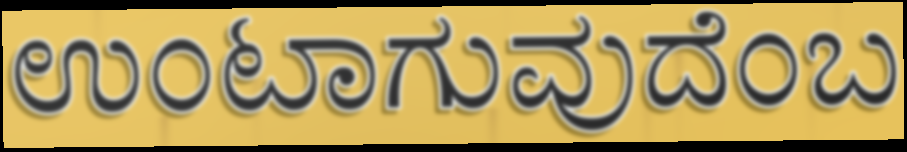
ಉಂಟಾಗುವುದೆಂಬ